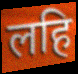
लहि